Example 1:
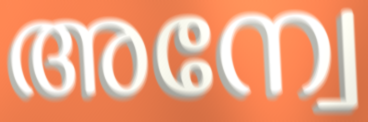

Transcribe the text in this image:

അന്വേ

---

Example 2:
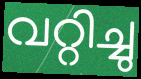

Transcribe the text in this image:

വറ്റിച്ചു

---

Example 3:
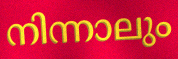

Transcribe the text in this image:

നിന്നാലും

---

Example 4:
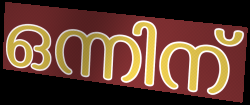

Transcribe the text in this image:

ഒന്നിന്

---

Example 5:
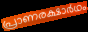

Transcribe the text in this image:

പ്രാണരക്ഷാർഥം